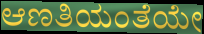
ಆಣತಿಯಂತೆಯೇ